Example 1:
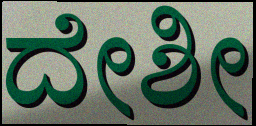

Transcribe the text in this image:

ದೇಶೀ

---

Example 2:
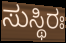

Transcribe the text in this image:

ಸುಸ್ಥಿರಃ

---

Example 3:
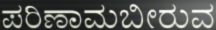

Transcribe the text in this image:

ಪರಿಣಾಮಬೀರುವ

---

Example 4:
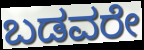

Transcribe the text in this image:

ಬಡವರೇ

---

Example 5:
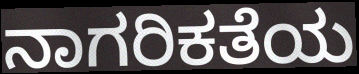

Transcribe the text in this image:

ನಾಗರಿಕತೆಯ